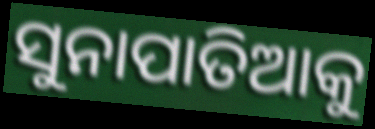
ସୁନାପାତିଆକୁ